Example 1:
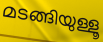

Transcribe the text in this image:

മടങ്ങിയുള്ളൂ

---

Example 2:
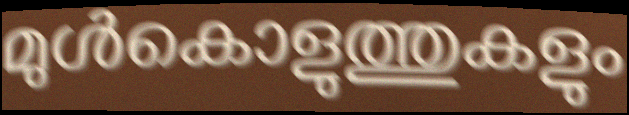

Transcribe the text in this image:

മുൾകൊളുത്തുകളും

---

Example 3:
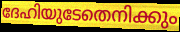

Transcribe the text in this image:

ദേഹിയുടേതെനിക്കും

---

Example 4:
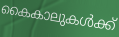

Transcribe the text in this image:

കൈകാലുകൾക്ക്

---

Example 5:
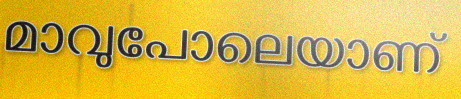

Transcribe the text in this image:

മാവുപോലെയാണ്